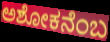
ಅಶೋಕನೆಂಬ